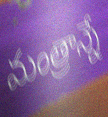
మంత్రాన్నే